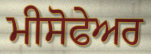
ਮੀਸੋਫੇਅਰ